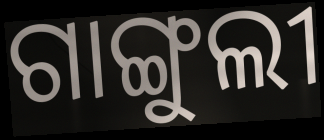
ଗାଙ୍ଗୁଲୀ